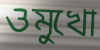
ওমুখো